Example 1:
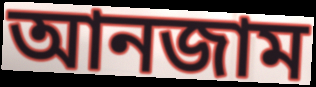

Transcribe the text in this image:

আনজাম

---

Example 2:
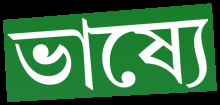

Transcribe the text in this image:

ভাষ্যে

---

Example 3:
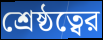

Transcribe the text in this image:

শ্রেষ্ঠত্বের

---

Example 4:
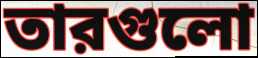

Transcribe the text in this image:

তারগুলো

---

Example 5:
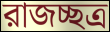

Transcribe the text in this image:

রাজচ্ছত্র